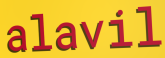
alavil